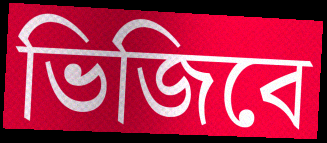
ভিজিবে